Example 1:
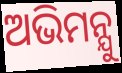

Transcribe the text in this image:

ଅଭିମନ୍ଯୁ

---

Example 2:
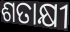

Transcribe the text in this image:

ଶତାକ୍ଷୀ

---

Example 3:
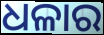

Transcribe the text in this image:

ଧଳାର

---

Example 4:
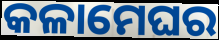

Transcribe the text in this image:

କଳାମେଘର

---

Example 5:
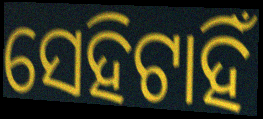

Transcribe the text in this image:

ସେହିଟାହିଁ